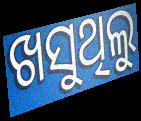
ଖସୁଥିଲୁ